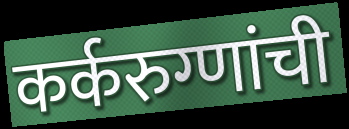
कर्करुग्णांची